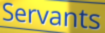
Servants